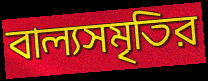
বাল্যসমৃতির